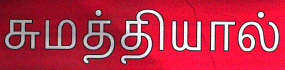
சுமத்தியால்